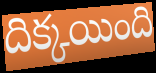
దిక్కయింది